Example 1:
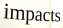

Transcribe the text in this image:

impacts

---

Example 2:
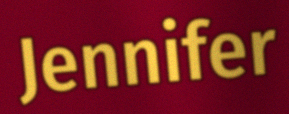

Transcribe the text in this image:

Jennifer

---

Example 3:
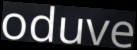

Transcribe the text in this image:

oduve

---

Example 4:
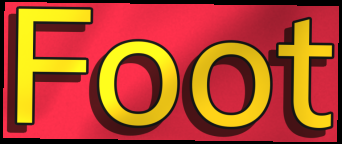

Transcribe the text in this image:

Foot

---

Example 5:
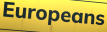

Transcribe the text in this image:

Europeans